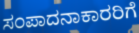
ಸಂಪಾದನಾಕಾರರಿಗೆ